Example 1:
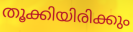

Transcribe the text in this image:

തൂക്കിയിരിക്കും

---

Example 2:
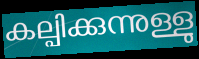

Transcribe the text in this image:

കല്പിക്കുന്നുള്ളു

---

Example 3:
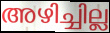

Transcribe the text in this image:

അഴിച്ചില്ല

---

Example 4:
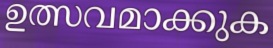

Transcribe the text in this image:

ഉത്സവമാക്കുക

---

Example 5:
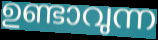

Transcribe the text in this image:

ഉണ്ടാവുന്ന